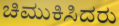
ಚಿಮುಕಿಸಿದರು